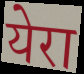
येरा